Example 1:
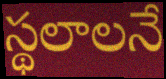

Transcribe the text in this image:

స్థలాలనే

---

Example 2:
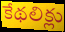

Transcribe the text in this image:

కేథలిక్లు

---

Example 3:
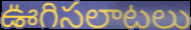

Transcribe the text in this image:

ఊగిసలాటలు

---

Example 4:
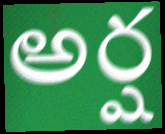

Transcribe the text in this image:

అర్ష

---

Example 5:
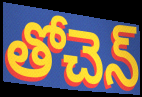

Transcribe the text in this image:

తోచెన్